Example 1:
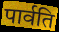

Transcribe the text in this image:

पार्वति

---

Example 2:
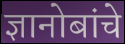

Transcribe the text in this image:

ज्ञानोबांचे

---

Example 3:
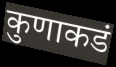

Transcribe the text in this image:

कुणाकडं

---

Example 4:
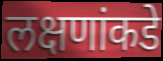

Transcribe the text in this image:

लक्षणांकडे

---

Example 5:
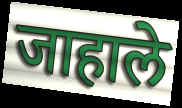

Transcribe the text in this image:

जाहाले